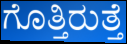
ಗೊತ್ತಿರುತ್ತೆ